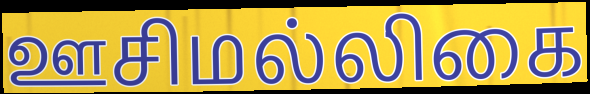
ஊசிமல்லிகை